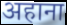
अहाना